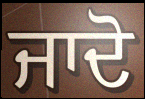
ਜਾਦੋ